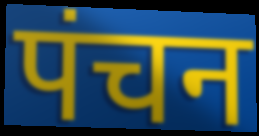
पंचन